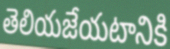
తెలియజేయటానికి